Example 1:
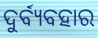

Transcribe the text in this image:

ଦୁର୍ବ୍ୟବହାର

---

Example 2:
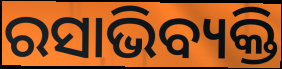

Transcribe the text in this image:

ରସାଭିବ୍ୟକ୍ତି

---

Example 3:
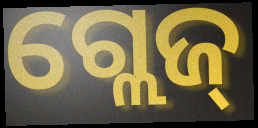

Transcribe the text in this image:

ଗ୍ଲେଜ୍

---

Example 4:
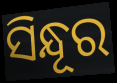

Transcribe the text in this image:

ସିନ୍ଧୂର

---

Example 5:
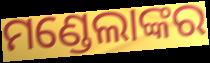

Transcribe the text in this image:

ମଣ୍ଡେଲାଙ୍କର